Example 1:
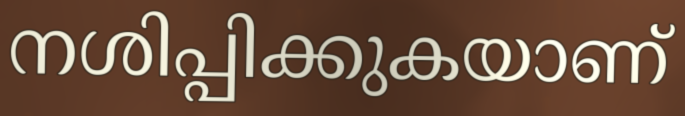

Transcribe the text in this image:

നശിപ്പിക്കുകയാണ്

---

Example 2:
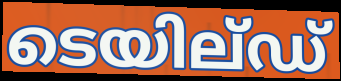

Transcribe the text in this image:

ടെയില്ഡ്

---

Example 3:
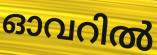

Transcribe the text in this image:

ഓവറിൽ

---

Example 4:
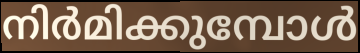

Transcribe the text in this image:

നിർമിക്കുമ്പോൾ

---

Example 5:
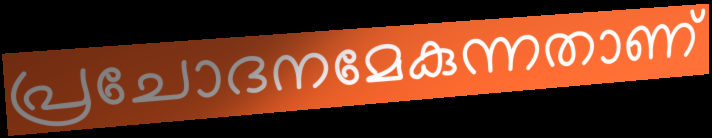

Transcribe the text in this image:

പ്രചോദനമേകുന്നതാണ്